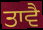
ਤਾਵੈ